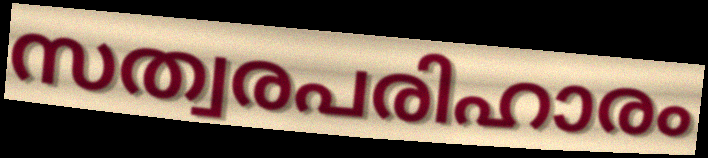
സത്വരപരിഹാരം